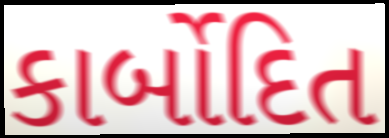
કાર્બોદિત